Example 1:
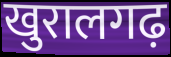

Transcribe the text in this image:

खुरालगढ़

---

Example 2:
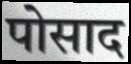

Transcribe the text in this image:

पोसाद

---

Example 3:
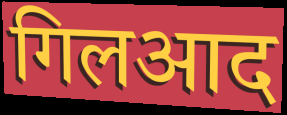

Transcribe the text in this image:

गिलआद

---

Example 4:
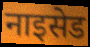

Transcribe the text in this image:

नाइसेड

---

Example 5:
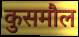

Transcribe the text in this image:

कुसमौल